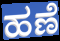
ಹಣೆ